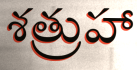
శత్రుహా